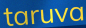
taruva